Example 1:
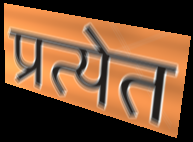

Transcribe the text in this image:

प्रत्येत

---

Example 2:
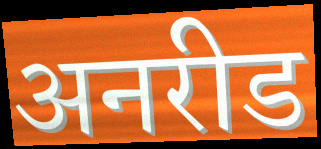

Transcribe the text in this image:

अनरीड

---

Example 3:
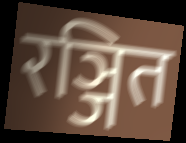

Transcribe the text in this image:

रञ्जित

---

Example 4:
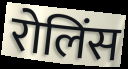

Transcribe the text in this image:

रोलिंस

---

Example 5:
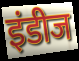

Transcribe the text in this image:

इंडीज